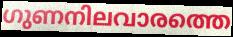
ഗുണനിലവാരത്തെ